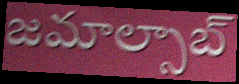
జమాల్సాబ్